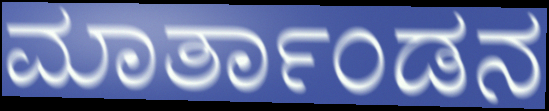
ಮಾರ್ತಾಂಡನ